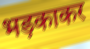
भड़काकर